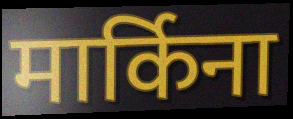
मार्किना